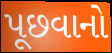
પૂછવાનો